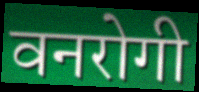
वनरोगी